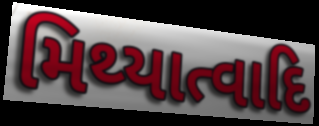
મિથ્યાત્વાદિ